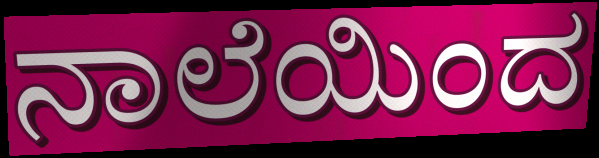
ನಾಲೆಯಿಂದ